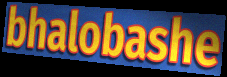
bhalobashe